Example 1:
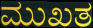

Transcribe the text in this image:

ಮುಖತ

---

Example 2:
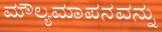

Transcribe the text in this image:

ಮೌಲ್ಯಮಾಪನವನ್ನು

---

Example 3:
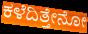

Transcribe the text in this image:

ಕಳೆದಿತ್ತೇನೋ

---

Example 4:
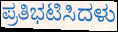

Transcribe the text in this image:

ಪ್ರತಿಭಟಿಸಿದಳು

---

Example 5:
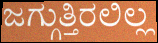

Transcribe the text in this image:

ಜಗ್ಗುತ್ತಿರಲಿಲ್ಲ